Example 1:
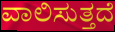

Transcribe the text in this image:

ವಾಲಿಸುತ್ತದೆ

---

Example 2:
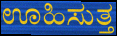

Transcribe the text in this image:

ಊಹಿಸುತ್ತ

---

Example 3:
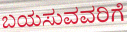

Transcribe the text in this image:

ಬಯಸುವವರಿಗೆ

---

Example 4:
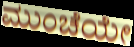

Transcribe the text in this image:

ಮುಂಚೆಯೇ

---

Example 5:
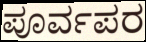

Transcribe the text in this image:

ಪೂರ್ವಪರ